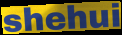
shehui